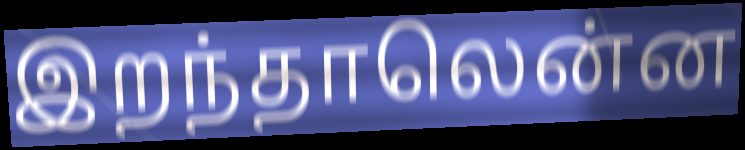
இறந்தாலென்ன